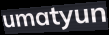
umatyun